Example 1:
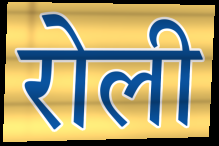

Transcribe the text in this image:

रोली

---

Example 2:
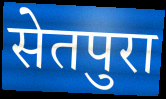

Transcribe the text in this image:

सेतपुरा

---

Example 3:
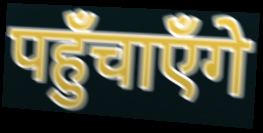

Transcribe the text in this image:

पहुँचाएँगे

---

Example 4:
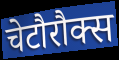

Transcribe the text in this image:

चेटौरौक्स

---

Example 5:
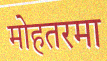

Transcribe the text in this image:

मोहतरमा